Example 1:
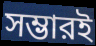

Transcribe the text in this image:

সম্ভারই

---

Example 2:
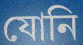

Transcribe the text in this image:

যোনি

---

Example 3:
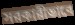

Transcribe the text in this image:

সরকারীভাবে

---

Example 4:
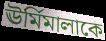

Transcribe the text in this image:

ঊর্মিমালাকে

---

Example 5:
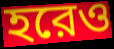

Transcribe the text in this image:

হরেও